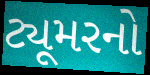
ટ્યૂમરનો